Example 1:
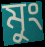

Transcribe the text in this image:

মুং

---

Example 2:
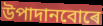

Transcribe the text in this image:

উপাদানবোৰে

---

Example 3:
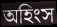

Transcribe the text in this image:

অহিংস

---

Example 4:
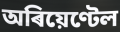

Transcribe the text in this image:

অৰিয়েণ্টেল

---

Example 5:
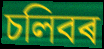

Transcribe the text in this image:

চলিবৰ